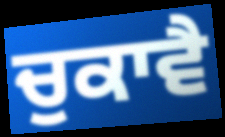
ਚੁਕਾਵੈ